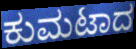
ಕುಮಟಾದ